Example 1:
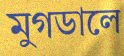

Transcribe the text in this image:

মুগডালে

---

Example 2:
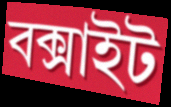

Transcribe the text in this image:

বক্সাইট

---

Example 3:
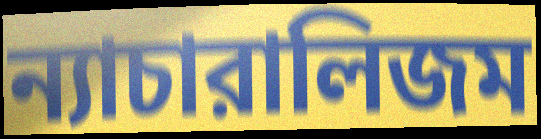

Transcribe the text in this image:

ন্যাচারালিজম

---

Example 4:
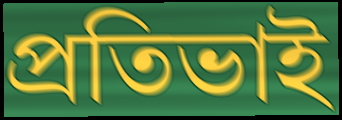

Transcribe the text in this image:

প্রতিভাই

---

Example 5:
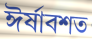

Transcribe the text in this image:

ঈর্ষাবশত